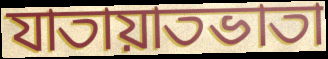
যাতায়াতভাতা